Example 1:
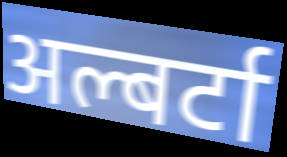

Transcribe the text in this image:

अल्बर्टा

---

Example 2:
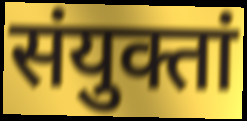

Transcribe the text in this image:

संयुक्तां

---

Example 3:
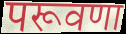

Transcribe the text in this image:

परूवणा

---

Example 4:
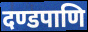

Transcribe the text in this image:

दण्डपाणि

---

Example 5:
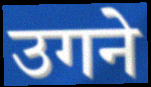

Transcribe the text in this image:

उगने